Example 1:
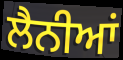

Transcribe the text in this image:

ਲੈਨੀਆਂ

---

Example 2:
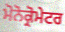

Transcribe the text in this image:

ਮੋਨੋਕ੍ਰੋਮੇਟਰ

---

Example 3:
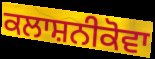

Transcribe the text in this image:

ਕਲਾਸ਼ਨੀਕੋਵਾ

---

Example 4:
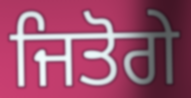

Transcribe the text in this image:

ਜਿਤੋਗੇ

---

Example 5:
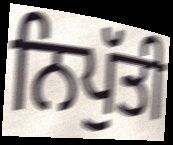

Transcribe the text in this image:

ਨਿਪੁੱਤੀ